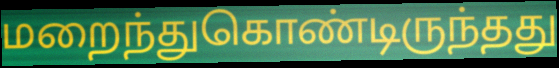
மறைந்துகொண்டிருந்தது